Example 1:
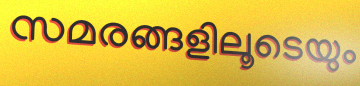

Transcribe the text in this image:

സമരങ്ങളിലൂടെയും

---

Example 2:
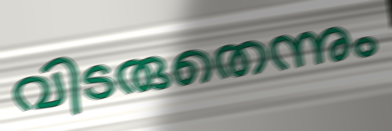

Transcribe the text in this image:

വിടരുതെന്നും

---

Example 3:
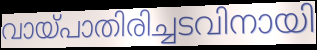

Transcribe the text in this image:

വായ്പാതിരിച്ചടവിനായി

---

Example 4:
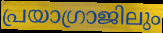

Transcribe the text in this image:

പ്രയാഗ്രാജിലും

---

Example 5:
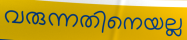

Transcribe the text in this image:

വരുന്നതിനെയല്ല